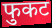
फुकट